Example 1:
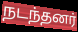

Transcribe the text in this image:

நடந்தனர்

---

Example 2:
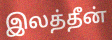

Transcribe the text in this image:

இலத்தீன்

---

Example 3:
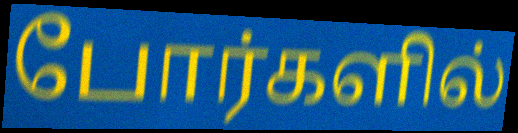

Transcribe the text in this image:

போர்களில்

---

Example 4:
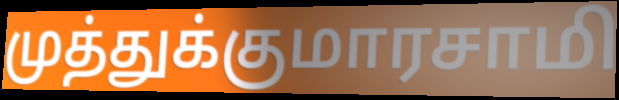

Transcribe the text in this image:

முத்துக்குமாரசாமி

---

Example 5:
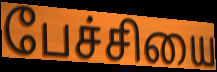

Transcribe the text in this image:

பேச்சியை